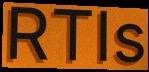
RTIs